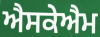
ਐਸਕੇਐਮ